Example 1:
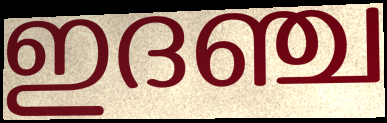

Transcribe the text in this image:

ഇദഞ്ച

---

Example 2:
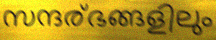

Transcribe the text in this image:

സന്ദര്ഭങ്ങളിലും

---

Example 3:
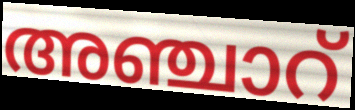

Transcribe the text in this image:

അഞ്ചാറ്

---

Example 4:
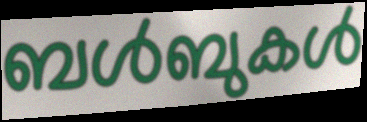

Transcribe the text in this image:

ബൾബുകൾ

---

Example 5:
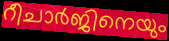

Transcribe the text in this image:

റീചാർജിനെയും